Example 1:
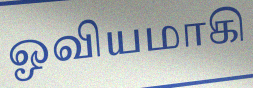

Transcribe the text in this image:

ஓவியமாகி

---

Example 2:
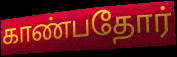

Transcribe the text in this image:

காண்பதோர்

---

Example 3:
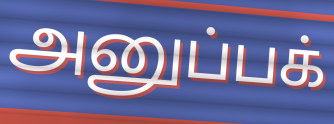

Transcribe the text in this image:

அனுப்பக்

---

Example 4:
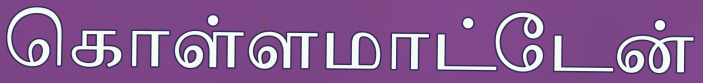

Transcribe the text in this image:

கொள்ளமாட்டேன்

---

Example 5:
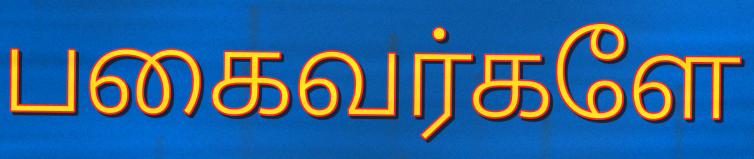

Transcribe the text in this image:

பகைவர்களே